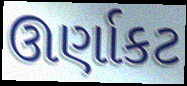
ઊર્ણાકટ